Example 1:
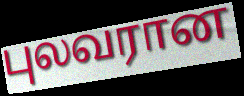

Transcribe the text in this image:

புலவரான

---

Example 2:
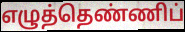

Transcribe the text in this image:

எழுத்தெண்ணிப்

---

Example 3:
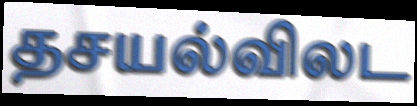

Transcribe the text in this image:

தசயல்விலட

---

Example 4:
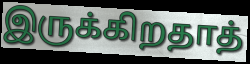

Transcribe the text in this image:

இருக்கிறதாத்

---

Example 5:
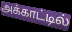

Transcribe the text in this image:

அக்காட்டில்